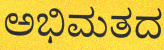
ಅಭಿಮತದ